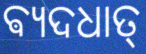
ଵ୍ୟଦଧାତ୍